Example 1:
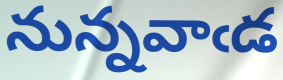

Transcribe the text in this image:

నున్నవాఁడ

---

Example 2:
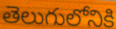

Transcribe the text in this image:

తెలుగులోనికి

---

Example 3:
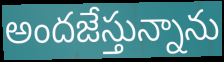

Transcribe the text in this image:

అందజేస్తున్నాను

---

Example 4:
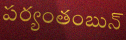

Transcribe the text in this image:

పర్యంతంబున్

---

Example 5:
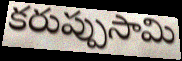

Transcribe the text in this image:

కరుప్పుసామి